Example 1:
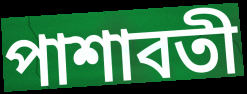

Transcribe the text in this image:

পাশাবতী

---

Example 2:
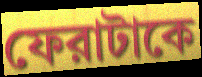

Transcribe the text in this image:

ফেরাটাকে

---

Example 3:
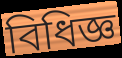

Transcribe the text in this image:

বিধিজ্ঞ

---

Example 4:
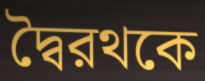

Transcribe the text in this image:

দ্বৈরথকে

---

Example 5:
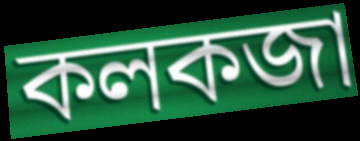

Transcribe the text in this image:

কলকজা